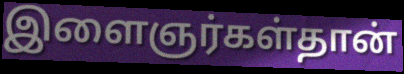
இளைஞர்கள்தான்